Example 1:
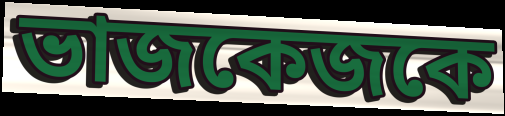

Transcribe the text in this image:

ভাজকেজকে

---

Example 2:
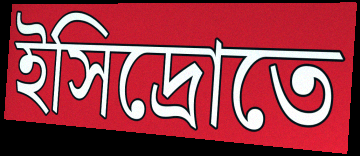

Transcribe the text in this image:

ইসিদ্রোতে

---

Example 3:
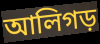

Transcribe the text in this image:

আলিগড়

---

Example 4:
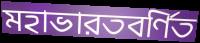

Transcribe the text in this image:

মহাভারতবর্ণিত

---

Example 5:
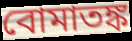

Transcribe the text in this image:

বোমাতঙ্ক